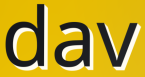
dav